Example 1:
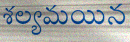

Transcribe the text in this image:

శల్యమయిన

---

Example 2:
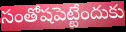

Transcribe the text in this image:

సంతోషపెట్టేందుకు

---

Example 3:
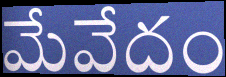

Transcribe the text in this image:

మేవేదం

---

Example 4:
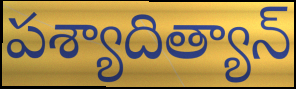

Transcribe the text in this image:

పశ్యాదిత్యాన్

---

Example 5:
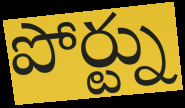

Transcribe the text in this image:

పోర్ట్ను